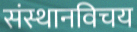
संस्थानविचय